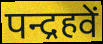
पन्द्रहवें